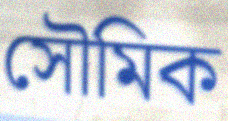
সৌমিক